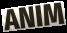
ANIM